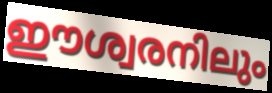
ഈശ്വരനിലും